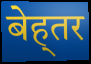
बेह्तर